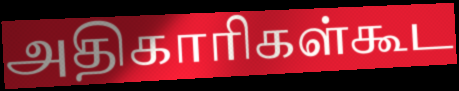
அதிகாரிகள்கூட